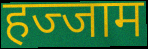
हज्जाम